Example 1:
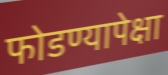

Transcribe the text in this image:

फोडण्यापेक्षा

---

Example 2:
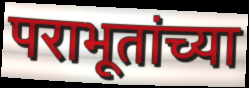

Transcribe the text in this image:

पराभूतांच्या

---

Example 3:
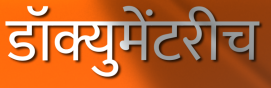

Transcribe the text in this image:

डॉक्युमेंटरीच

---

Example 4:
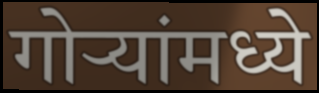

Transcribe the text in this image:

गोऱ्यांमध्ये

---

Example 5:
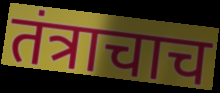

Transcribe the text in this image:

तंत्राचाच